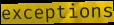
exceptions